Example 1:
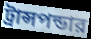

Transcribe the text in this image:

ট্রান্সপন্ডার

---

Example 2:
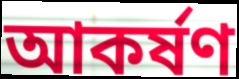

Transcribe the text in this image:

আকর্ষণ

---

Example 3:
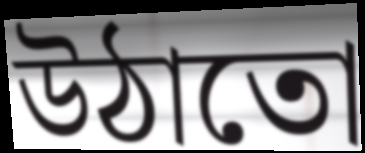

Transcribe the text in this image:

উঠাতো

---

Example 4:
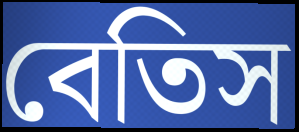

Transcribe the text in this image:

বেতিস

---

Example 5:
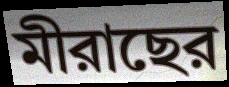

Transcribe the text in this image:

মীরাছের